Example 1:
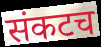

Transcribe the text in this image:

संकटच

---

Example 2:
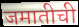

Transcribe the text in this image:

जमातीची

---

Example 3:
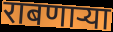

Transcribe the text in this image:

राबणार्‍या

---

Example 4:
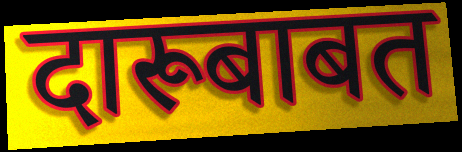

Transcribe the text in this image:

दारूबाबत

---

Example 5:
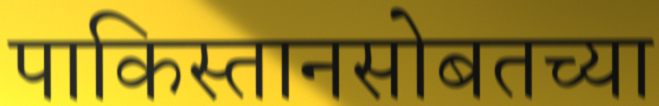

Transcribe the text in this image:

पाकिस्तानसोबतच्या